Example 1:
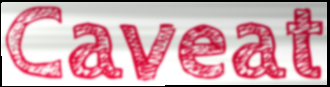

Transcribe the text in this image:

Caveat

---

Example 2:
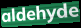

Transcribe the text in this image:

aldehyde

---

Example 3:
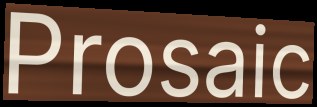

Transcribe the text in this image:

Prosaic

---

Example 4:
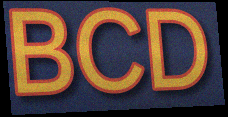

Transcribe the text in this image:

BCD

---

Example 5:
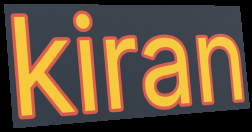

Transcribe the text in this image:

kiran